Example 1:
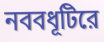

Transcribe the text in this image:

নববধূটিরে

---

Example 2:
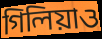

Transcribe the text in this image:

গিলিয়াও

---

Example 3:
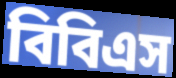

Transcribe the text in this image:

বিবিএস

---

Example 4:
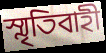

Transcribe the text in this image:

স্মৃতিবাহী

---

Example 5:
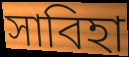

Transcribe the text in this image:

সাবিহা